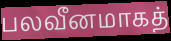
பலவீனமாகத்